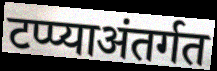
टप्प्याअंतर्गत